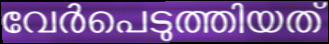
വേർപെടുത്തിയത്